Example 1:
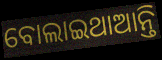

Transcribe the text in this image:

ବୋଲାଇଥାଆନ୍ତି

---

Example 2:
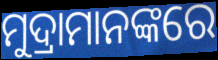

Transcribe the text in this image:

ମୁଦ୍ରାମାନଙ୍କରେ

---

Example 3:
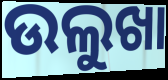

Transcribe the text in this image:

ଉଲୁଖା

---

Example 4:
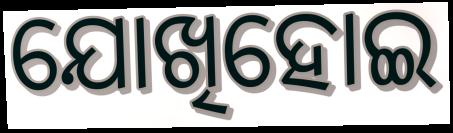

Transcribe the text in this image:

ଯୋଖିହୋଇ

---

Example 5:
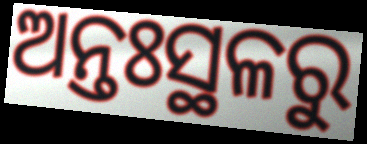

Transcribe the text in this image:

ଅନ୍ତଃସ୍ଥଳରୁ